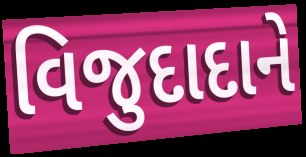
વિજુદાદાને